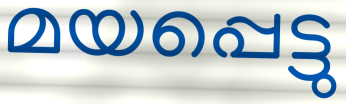
മയപ്പെട്ടു